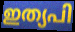
ഇത്യപി